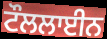
ਟੌਲਲਾਈਨ